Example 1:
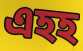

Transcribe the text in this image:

এহহ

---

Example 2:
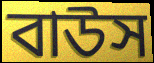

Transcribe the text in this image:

বাউস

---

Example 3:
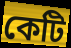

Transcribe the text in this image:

কেটি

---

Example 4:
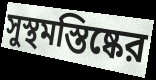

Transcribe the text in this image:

সুস্থমস্তিষ্কের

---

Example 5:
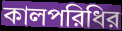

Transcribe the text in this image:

কালপরিধির